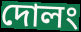
দোলং